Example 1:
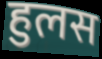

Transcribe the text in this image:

हुलस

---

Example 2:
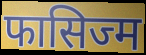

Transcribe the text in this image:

फासिज्म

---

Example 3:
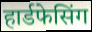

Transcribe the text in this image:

हार्डफेसिंग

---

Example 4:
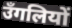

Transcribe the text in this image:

उँगलियों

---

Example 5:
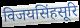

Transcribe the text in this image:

विजयसिंहसूरि